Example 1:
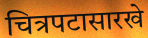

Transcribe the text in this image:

चित्रपटासारखे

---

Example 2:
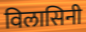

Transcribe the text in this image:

विलासिनी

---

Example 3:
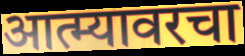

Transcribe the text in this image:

आत्म्यावरचा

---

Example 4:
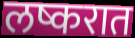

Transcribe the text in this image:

लष्करात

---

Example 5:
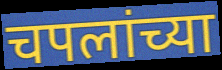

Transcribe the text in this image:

चपलांच्या